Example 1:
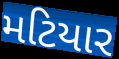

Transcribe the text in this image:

મટિયાર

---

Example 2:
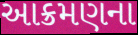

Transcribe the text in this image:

આક્રમણના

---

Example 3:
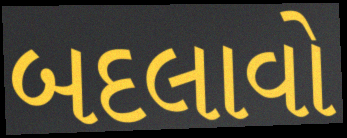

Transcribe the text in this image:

બદલાવો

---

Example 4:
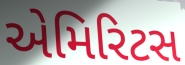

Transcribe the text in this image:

એમિરિટસ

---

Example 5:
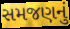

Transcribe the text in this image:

સમજણનું